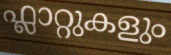
ഫ്ലാറ്റുകളും